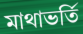
মাথাভর্তি